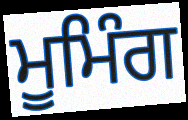
ਮੂਮਿੰਗ